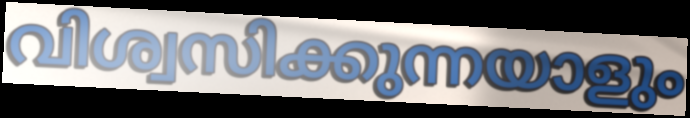
വിശ്വസിക്കുന്നയാളും